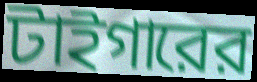
টাইগারের